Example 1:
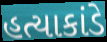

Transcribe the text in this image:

હત્યાકાંડે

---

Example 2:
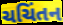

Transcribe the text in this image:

ચચિંતન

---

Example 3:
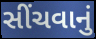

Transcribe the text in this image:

સીંચવાનું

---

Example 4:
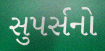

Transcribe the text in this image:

સુપર્સનો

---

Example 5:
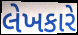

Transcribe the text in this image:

લેખકારે